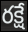
రక్షే